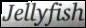
Jellyfish